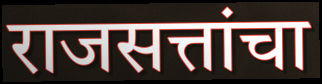
राजसत्तांचा